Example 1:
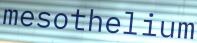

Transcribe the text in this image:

mesothelium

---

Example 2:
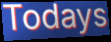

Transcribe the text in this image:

Todays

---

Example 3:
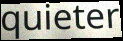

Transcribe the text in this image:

quieter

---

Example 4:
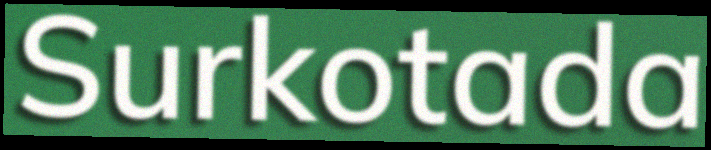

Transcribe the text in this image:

Surkotada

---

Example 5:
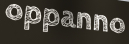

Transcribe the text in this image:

oppanno